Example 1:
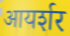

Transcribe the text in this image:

आयर्शर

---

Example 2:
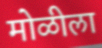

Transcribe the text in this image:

मोळीला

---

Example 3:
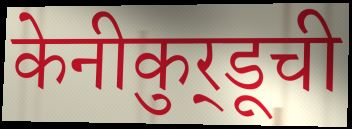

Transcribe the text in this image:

केनीकुर्डूची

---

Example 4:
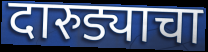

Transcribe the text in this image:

दारुड्याचा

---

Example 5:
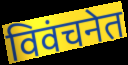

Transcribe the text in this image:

विवंचनेत